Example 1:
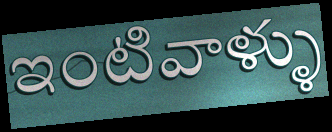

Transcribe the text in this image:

ఇంటివాళ్ళు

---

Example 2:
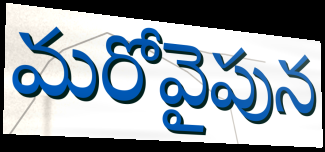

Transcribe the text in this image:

మరోవైపున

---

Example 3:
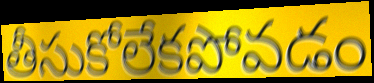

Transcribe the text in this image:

తీసుకోలేకపోవడం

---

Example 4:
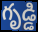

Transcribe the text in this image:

గృడ్డి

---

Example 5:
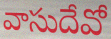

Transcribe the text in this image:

వాసుదేవో